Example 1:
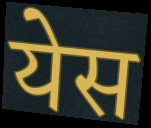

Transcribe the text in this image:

येस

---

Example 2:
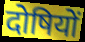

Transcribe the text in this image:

दोषियों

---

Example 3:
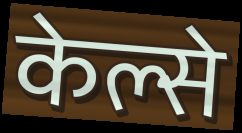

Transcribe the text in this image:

केल्से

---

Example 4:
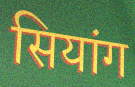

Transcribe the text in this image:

सियांग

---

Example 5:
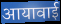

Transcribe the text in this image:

आयावाई